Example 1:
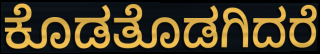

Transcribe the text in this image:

ಕೊಡತೊಡಗಿದರೆ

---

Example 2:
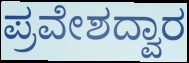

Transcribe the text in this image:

ಪ್ರವೇಶದ್ವಾರ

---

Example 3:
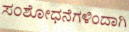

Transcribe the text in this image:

ಸಂಶೋಧನೆಗಳಿಂದಾಗಿ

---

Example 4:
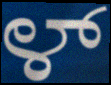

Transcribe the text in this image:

ಳ್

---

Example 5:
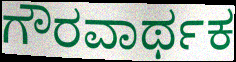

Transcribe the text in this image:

ಗೌರವಾರ್ಥಕ